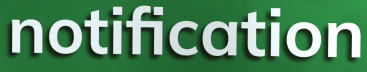
notification